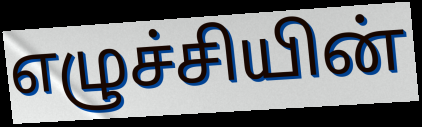
எழுச்சியின்